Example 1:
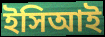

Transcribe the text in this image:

ইসিআই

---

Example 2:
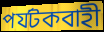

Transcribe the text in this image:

পর্যটকবাহী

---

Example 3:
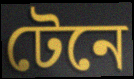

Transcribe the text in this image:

টেনে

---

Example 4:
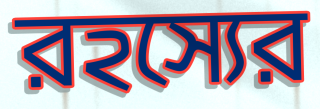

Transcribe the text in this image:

রহস্যের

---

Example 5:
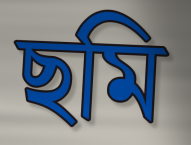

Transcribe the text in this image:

ছমি